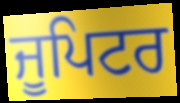
ਜੂਪਿਟਰ